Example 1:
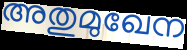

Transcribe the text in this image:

അതുമുഖേന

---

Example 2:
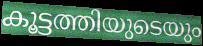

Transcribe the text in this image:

കൂട്ടത്തിയുടെയും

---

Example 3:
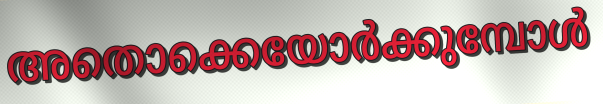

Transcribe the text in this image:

അതൊക്കെയോർക്കുമ്പോൾ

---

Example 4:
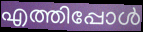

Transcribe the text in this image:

എത്തിപ്പോൾ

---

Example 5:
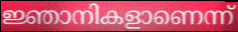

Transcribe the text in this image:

ജ്ഞാനികളാണെന്ന്